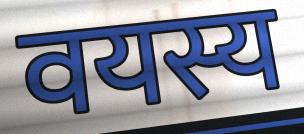
वयस्य